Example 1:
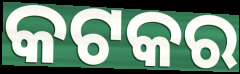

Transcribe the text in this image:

କଟକର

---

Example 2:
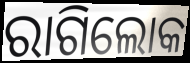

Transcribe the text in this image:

ରାଗିଲୋକ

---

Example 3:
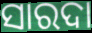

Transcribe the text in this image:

ସାରଦା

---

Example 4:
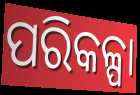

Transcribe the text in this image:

ପରିକଳ୍ପା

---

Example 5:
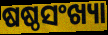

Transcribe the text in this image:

ଷଷ୍ଠସଂଖ୍ୟା